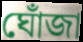
ঘোঁজা